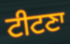
ਟੀਟਣਾ